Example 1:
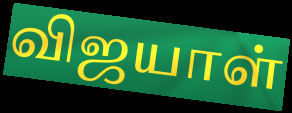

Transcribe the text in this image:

விஜயாள்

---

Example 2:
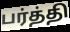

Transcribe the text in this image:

பர்த்தி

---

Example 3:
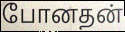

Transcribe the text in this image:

போனதன்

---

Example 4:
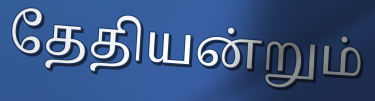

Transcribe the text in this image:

தேதியன்றும்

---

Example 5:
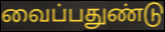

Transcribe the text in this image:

வைப்பதுண்டு